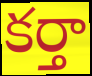
కర్తా